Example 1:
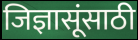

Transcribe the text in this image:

जिज्ञासूंसाठी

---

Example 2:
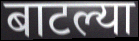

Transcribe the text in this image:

बाटल्या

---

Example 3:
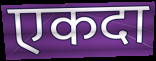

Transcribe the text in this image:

एकदा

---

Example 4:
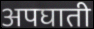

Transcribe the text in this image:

अपघाती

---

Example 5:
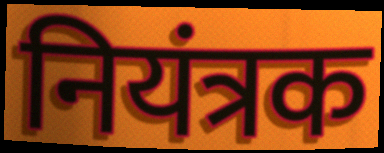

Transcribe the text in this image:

नियंत्रक